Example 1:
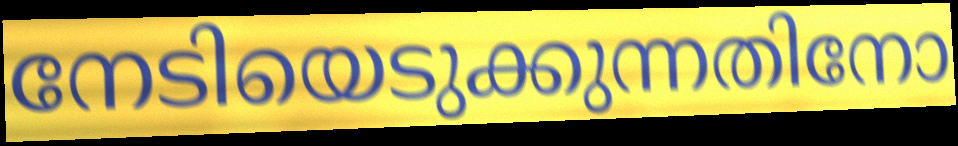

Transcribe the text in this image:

നേടിയെടുക്കുന്നതിനോ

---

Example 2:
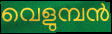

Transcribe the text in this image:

വെളുമ്പൻ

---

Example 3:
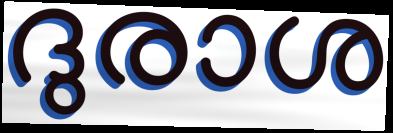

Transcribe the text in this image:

ദുരാശ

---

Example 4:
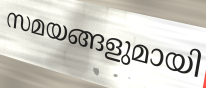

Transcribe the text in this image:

സമയങ്ങളുമായി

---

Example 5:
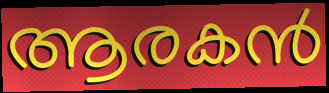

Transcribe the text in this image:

ആരകൻ